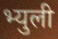
भ्युली